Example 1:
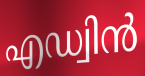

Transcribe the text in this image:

എഡ്വിൻ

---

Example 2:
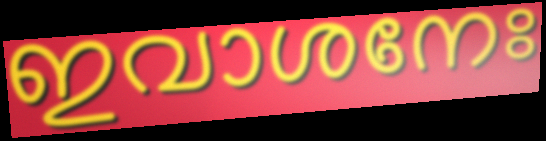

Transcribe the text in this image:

ഇവാശനേഃ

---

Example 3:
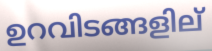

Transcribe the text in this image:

ഉറവിടങ്ങളില്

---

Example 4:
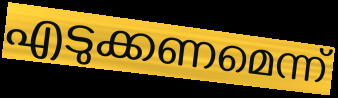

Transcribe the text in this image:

എടുക്കണമെന്ന്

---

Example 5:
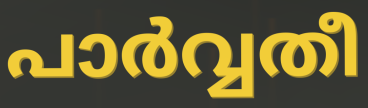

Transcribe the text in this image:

പാർവ്വതീ